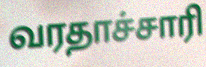
வரதாச்சாரி